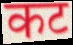
कट